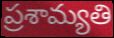
ప్రశామ్యతి